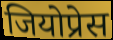
जियोप्रेस